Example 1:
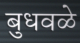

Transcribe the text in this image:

बुधवळे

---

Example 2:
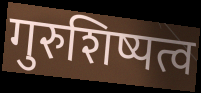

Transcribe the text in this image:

गुरुशिष्यत्व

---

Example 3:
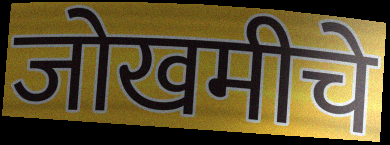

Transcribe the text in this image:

जोखमीचे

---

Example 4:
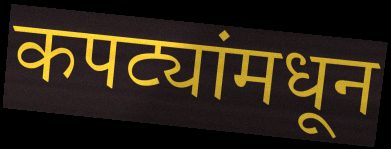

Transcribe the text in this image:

कपट्यांमधून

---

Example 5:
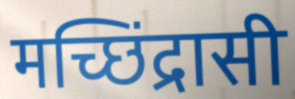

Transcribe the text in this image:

मच्छिंद्रासी